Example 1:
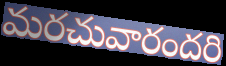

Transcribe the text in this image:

మరచువారందరి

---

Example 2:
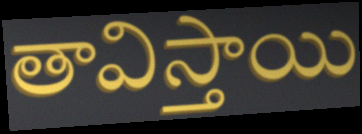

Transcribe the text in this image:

తావిస్తాయి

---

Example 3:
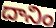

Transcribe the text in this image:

దానిం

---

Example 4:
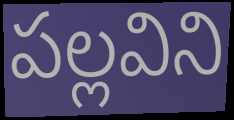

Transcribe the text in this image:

పల్లవిని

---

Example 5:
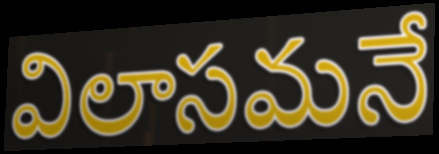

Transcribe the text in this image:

విలాసమనే